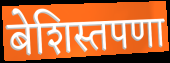
बेशिस्तपणा